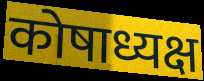
कोषाध्यक्ष